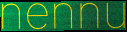
nennu